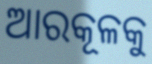
ଆରକୂଳକୁ